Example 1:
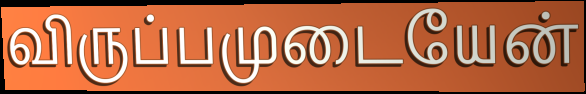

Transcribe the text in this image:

விருப்பமுடையேன்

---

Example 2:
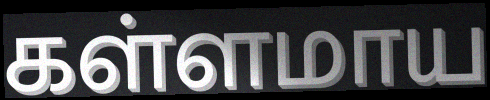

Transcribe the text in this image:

கள்ளமாய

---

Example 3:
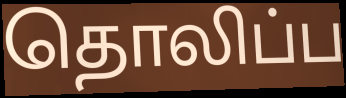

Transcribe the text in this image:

தொலிப்ப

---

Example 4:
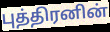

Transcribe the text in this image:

புத்திரனின்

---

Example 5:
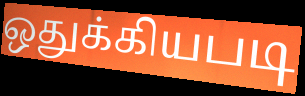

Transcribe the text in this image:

ஒதுக்கியபடி